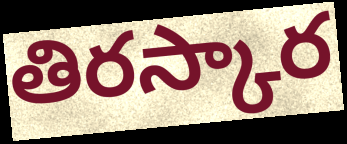
తిరస్కార